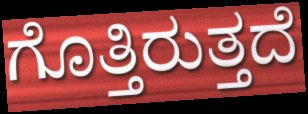
ಗೊತ್ತಿರುತ್ತದೆ